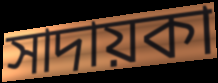
সাদায়কা